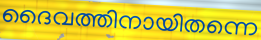
ദൈവത്തിനായിതന്നെ